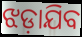
ଝଡ଼ାଯିବ